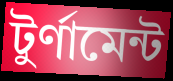
টুর্ণামেন্ট